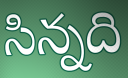
సిన్నది